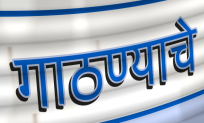
गाठण्याचे